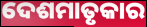
ଦେଶମାତୃକାର